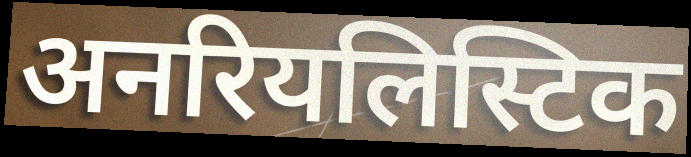
अनरियलिस्टिक